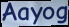
Aayog